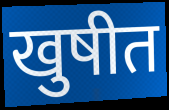
खुषीत